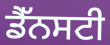
ਡੈੱਨਸਟੀ